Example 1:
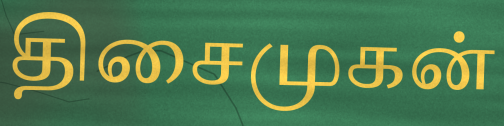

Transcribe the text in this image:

திசைமுகன்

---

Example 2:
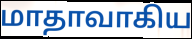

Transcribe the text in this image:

மாதாவாகிய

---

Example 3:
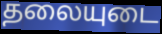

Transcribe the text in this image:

தலையுடை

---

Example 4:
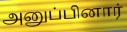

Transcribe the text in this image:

அனுப்பினார்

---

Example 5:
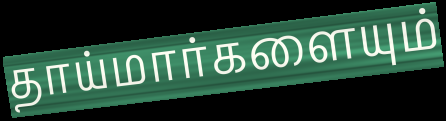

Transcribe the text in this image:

தாய்மார்களையும்